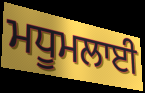
ਮਧੂਮਲਾਈ